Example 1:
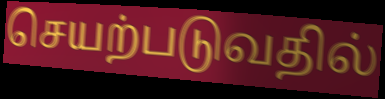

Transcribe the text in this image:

செயற்படுவதில்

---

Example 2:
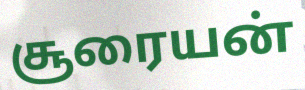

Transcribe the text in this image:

சூரையன்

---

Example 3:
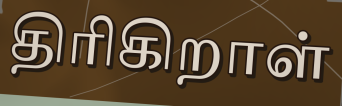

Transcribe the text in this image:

திரிகிறாள்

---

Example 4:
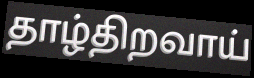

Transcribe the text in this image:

தாழ்திறவாய்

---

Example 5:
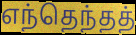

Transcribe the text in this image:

எந்தெந்தத்